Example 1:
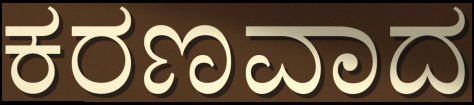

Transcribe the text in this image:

ಕರಣವಾದ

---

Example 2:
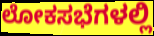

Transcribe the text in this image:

ಲೋಕಸಭೆಗಳಲ್ಲಿ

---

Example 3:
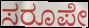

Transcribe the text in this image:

ಸರೂಪೇ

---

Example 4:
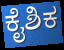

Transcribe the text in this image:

ಕೈಶಿಕ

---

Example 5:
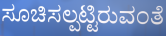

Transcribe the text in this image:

ಸೂಚಿಸಲ್ಪಟ್ಟಿರುವಂತೆ